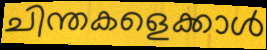
ചിന്തകളെക്കാൾ